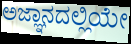
ಅಜ್ಞಾನದಲ್ಲಿಯೇ